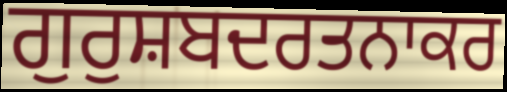
ਗੁਰੁਸ਼ਬਦਰਤਨਾਕਰ